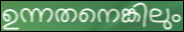
ഉന്നതനെങ്കിലും